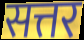
सत्तर